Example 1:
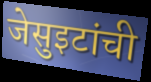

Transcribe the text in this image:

जेसुइटांची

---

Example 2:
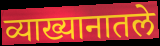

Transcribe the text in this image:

व्याख्यानातले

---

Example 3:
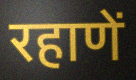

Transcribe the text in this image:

रहाणें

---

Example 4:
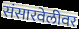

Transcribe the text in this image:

संसारवेलीवर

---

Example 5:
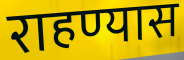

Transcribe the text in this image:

राहण्यास